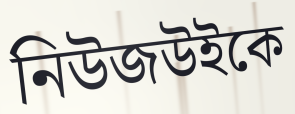
নিউজউইকে